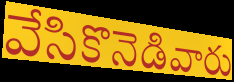
వేసికొనెడివారు